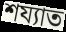
শয্যাত